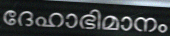
ദേഹാഭിമാനം